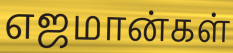
எஜமான்கள்